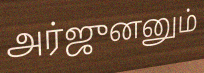
அர்ஜுனனும்